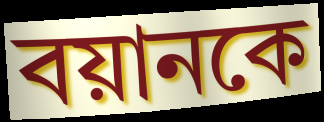
বয়ানকে